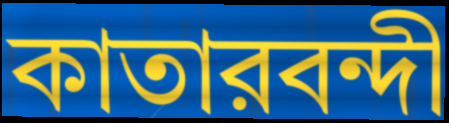
কাতারবন্দী